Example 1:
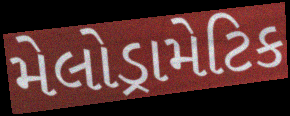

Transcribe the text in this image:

મેલોડ્રામેટિક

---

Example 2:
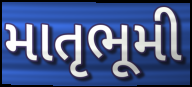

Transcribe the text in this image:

માતૃભૂમી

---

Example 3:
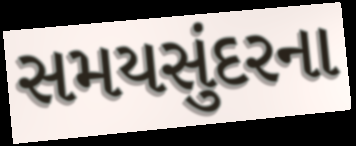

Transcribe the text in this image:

સમયસુંદરના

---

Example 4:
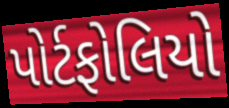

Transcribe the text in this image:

પોર્ટફોલિયો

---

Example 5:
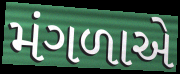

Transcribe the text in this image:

મંગળાએ